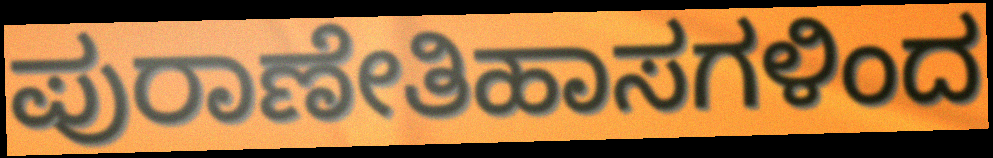
ಪುರಾಣೇತಿಹಾಸಗಳಿಂದ